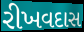
રીખવદાસ